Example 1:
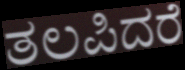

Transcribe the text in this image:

ತಲಪಿದರೆ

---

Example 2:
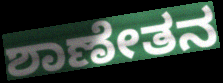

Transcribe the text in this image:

ಶಾಣೇತನ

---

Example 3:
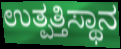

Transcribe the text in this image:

ಉತ್ಪತ್ತಿಸ್ಥಾನ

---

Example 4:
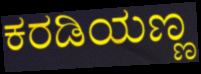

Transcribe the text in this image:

ಕರಡಿಯಣ್ಣ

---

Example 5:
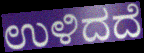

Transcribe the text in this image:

ಉಳಿದದೆ